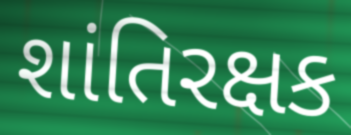
શાંતિરક્ષક